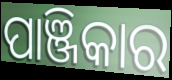
ପାଞ୍ଜିକାର